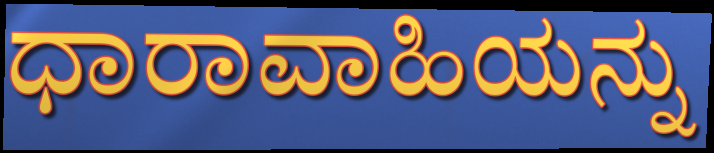
ಧಾರಾವಾಹಿಯನ್ನು